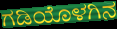
ಗಡಿಯೊಳಗಿನ